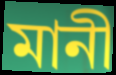
মানী